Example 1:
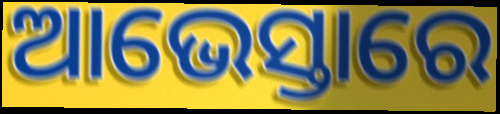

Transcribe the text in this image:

ଆଭେସ୍ତାରେ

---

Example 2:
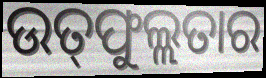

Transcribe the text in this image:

ଉତ୍‌ଫୁଲ୍ଲତାର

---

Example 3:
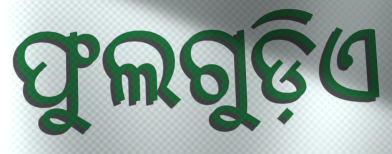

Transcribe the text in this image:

ଫୁଲଗୁଡ଼ିଏ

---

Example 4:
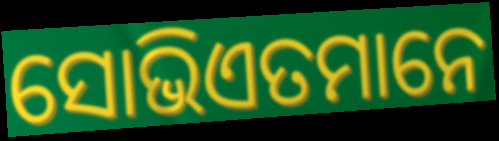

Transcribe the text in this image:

ସୋଭିଏତମାନେ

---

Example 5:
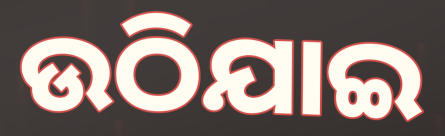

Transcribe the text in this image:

ଉଠିଯାଇ